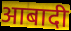
आबादी